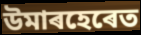
উমাৰহেৰেত